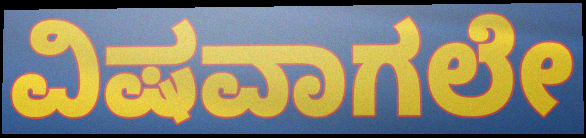
ವಿಷವಾಗಲೇ